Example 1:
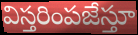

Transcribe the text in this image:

విస్తరింపజేస్తూ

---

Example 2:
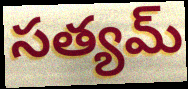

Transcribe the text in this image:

సత్యమ్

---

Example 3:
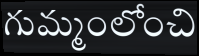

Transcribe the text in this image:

గుమ్మంలోంచి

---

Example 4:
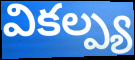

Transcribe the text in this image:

వికల్ప్య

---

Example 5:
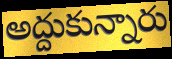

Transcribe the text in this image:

అద్దుకున్నారు